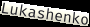
Lukashenko